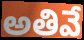
అతివే